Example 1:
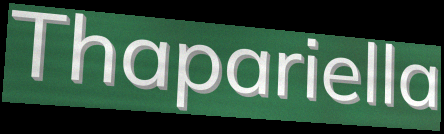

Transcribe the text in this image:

Thapariella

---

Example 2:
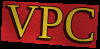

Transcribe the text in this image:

VPC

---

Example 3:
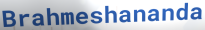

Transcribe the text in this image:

Brahmeshananda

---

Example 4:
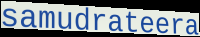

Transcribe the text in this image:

samudrateera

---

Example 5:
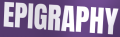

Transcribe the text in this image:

EPIGRAPHY